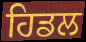
ਹਿਡਲ